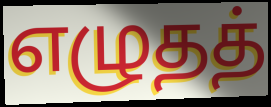
எழுதத்